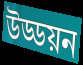
উড্ডয়ন